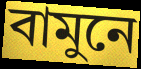
বামুনে